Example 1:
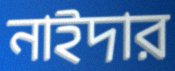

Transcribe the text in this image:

নাইদার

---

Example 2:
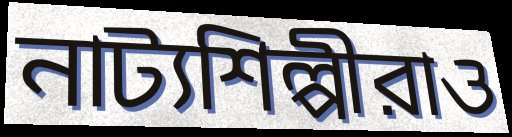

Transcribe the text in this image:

নাট্যশিল্পীরাও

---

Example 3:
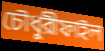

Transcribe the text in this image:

চৌধুরীফাইল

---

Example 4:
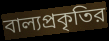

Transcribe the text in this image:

বাল্যপ্রকৃতির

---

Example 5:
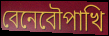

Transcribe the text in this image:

বেনেবৌপাখি